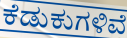
ಕೆಡುಕುಗಳಿವೆ